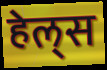
हेल्स